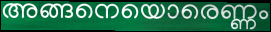
അങ്ങനെയൊരെണ്ണം